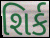
શિર્ક